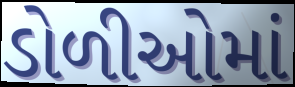
ડોળીઓમાં